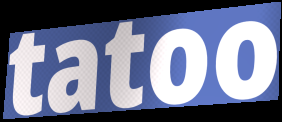
tatoo